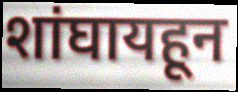
शांघायहून